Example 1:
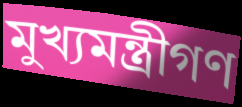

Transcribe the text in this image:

মুখ্যমন্ত্রীগণ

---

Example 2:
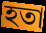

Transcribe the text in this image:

হতা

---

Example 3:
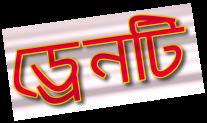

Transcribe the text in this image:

ড্রেনটি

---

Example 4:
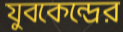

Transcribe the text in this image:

যুবকেন্দ্রের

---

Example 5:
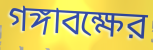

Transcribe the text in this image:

গঙ্গাবক্ষের